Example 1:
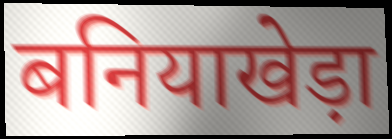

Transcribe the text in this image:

बनियाखेड़ा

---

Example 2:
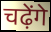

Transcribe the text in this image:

चढ़ेंगे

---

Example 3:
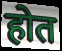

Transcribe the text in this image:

होत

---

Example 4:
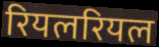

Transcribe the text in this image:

रियलरियल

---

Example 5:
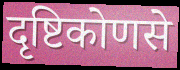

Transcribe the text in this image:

दृष्टिकोणसे